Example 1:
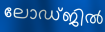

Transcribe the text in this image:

ലോഡ്ജിൽ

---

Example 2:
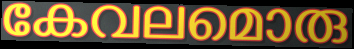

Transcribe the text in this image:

കേവലമൊരു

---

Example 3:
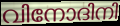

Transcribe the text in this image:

വിനോദിനി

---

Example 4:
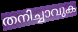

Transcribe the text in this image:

തനിച്ചാവുക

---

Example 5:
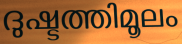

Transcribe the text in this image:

ദുഷ്ടത്തിമൂലം